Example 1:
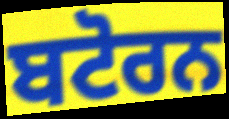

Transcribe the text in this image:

ਬਟੋਰਨ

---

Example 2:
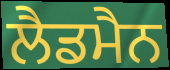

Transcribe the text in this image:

ਲੈਡਮੈਨ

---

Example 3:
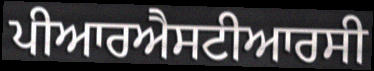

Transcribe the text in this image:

ਪੀਆਰਐਸਟੀਆਰਸੀ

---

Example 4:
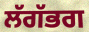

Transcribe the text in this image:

ਲੱਗੱਭਗ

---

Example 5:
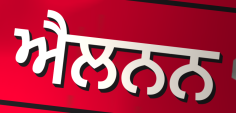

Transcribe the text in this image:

ਐਲਨਨ